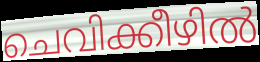
ചെവിക്കീഴിൽ